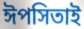
ঈপসিতাই